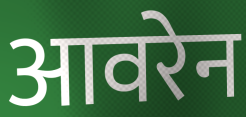
आवरेन